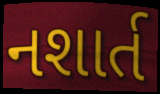
નશાર્ત